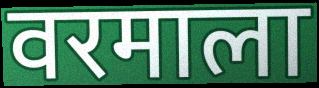
वरमाला